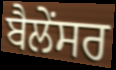
ਬੈਲੇਂਸਰ